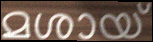
മശായ്